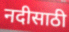
नदीसाठी